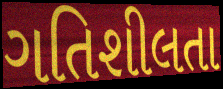
ગતિશીલતા